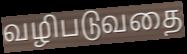
வழிபடுவதை